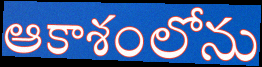
ఆకాశంలోను